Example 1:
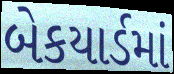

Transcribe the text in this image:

બેકયાર્ડમાં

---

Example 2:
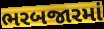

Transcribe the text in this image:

ભરબજારમાં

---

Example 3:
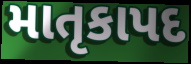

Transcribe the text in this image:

માતૃકાપદ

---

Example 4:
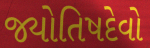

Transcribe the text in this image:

જ્યોતિષદેવો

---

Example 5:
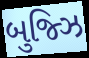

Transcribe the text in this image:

બુજ્ઝિ